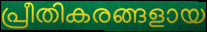
പ്രീതികരങ്ങളായ